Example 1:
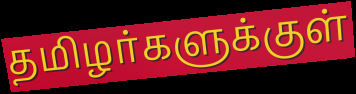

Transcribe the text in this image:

தமிழர்களுக்குள்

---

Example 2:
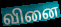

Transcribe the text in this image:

வினை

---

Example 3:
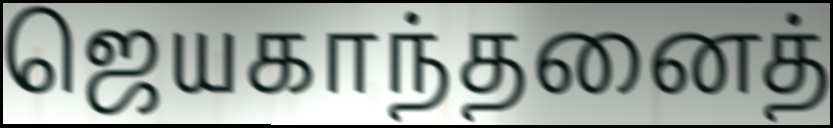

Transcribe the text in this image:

ஜெயகாந்தனைத்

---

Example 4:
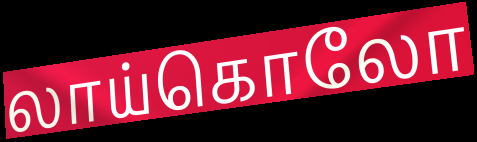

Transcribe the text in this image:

லாய்கொலோ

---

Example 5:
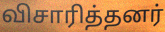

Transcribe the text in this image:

விசாரித்தனர்